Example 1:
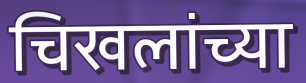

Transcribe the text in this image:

चिखलांच्या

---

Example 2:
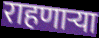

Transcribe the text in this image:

राहणाऱ्या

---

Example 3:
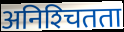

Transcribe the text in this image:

अनिश्‍चितता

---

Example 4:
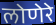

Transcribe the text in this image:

लोणेरे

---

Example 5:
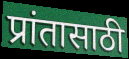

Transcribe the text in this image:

प्रांतासाठी